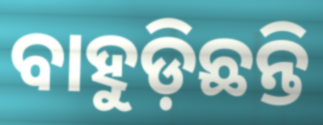
ବାହୁଡ଼ିଛନ୍ତି